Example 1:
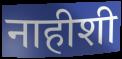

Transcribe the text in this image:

नाहीशी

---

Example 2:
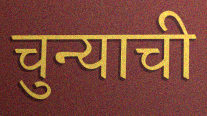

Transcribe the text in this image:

चुन्याची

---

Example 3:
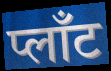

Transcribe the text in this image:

प्लाँट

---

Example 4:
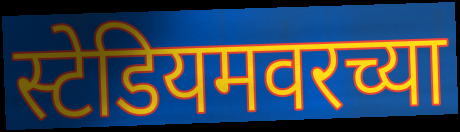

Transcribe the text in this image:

स्टेडियमवरच्या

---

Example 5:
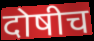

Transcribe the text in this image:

दोषीच